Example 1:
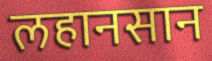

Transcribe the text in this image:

लहानसान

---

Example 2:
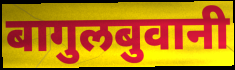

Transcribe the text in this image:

बागुलबुवानी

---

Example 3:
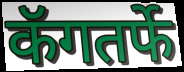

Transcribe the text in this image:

कॅगतर्फे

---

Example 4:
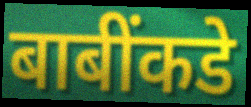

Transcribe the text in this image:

बाबींकडे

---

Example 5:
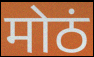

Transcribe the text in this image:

मोठं